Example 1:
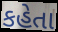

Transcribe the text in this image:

કહેતા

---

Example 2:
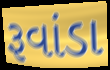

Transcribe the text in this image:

રૂવાંડા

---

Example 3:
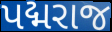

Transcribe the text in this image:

પદ્મરાજ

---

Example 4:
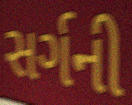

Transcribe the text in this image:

સર્ગની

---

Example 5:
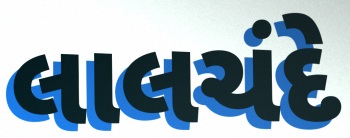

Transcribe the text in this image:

લાલચંદે